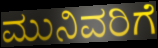
ಮುನಿವರಿಗೆ